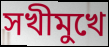
সখীমুখে